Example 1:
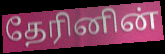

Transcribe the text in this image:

தேரினின்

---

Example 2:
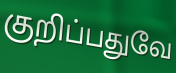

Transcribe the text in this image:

குறிப்பதுவே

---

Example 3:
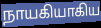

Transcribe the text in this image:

நாயகியாகிய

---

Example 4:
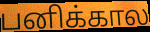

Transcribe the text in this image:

பனிக்கால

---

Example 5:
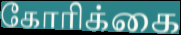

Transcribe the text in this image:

கோரிக்கை